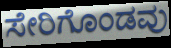
ಸೇರಿಗೊಂಡವು